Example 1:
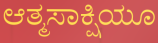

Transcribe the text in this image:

ಆತ್ಮಸಾಕ್ಷಿಯೂ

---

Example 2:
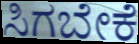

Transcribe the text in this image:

ಸಿಗಬೇಕೆ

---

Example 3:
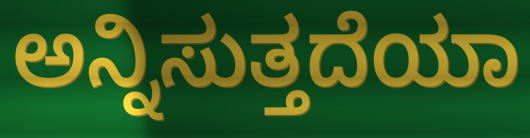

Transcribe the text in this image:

ಅನ್ನಿಸುತ್ತದೆಯಾ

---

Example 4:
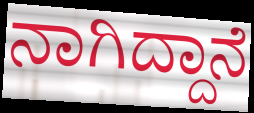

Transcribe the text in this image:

ನಾಗಿದ್ದಾನೆ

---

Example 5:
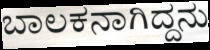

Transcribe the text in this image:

ಬಾಲಕನಾಗಿದ್ದನು